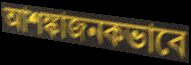
আশঙ্কাজনকভাবে